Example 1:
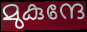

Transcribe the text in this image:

മുകുന്ദേ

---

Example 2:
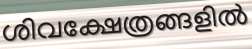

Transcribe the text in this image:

ശിവക്ഷേത്രങ്ങളിൽ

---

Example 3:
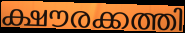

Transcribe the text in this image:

ക്ഷൗരക്കത്തി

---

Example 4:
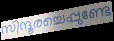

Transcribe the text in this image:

സിന്ദൂരച്ചെപ്പുണ്ടേ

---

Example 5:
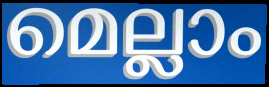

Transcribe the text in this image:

മെല്ലാം